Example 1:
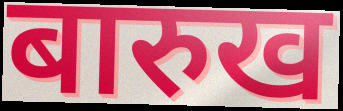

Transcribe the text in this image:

बारुख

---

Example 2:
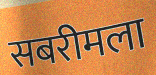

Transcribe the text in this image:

सबरीमला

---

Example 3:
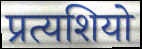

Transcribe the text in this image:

प्रत्यशियो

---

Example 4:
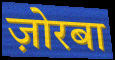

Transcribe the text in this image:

ज़ोरबा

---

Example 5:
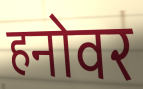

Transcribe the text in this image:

हनोवर